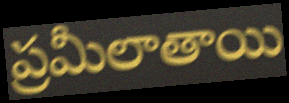
ప్రమీలాతాయి